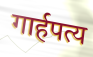
गार्हपत्य